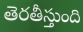
తెరతీస్తుంది